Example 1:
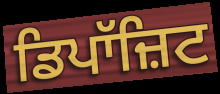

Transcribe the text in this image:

ਡਿਪਾੱਜ਼ਿਟ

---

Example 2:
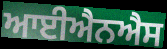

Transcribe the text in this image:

ਆਈਐਨਐਸ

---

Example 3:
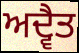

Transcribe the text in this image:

ਅਦ੍ਵੈਤ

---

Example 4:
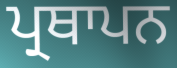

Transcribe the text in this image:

ਪ੍ਰਥਾਪਨ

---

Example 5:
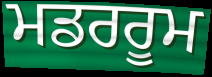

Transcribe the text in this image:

ਮਡਰਰੂਮ